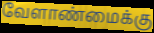
வேளாண்மைக்கு